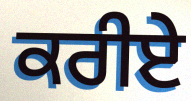
ਕਰੀਏੇ